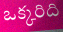
ఒక్కరిది